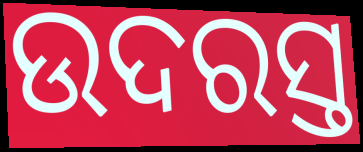
ଉଦରସ୍ତ